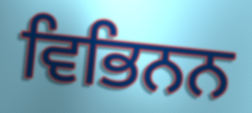
ਵਿਭਿਨਨ